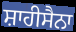
ਸ਼ਾਹੀਸੈਨਾ